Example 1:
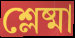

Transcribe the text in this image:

শ্লেষ্মা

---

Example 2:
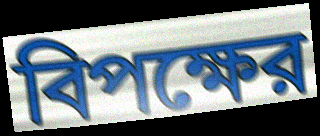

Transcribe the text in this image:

বিপক্ষের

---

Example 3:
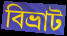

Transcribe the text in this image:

বিভ্রাট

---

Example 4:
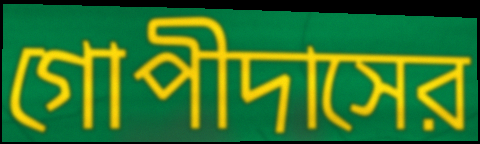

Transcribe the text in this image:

গোপীদাসের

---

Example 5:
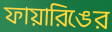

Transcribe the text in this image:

ফায়ারিঙের